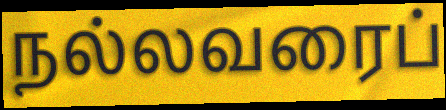
நல்லவரைப்